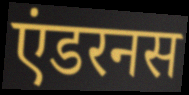
एंडरनस